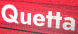
Quetta